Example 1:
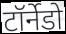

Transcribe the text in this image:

टॉर्नेडो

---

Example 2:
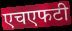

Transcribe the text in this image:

एचएफटी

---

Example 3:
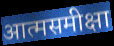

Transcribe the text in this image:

आत्मसमीक्षा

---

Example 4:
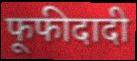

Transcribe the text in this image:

फूफीदादी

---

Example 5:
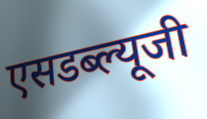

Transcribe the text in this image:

एसडब्ल्यूजी